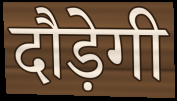
दौड़ेगी